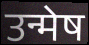
उन्मेष